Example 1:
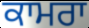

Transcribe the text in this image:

ਕਾਮਰਾ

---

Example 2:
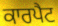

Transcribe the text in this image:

ਕਾਰਪੈਟ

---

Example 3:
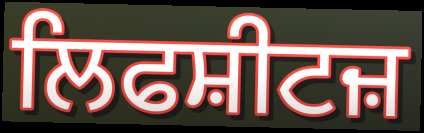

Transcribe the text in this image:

ਲਿਫਸ਼ੀਟਜ਼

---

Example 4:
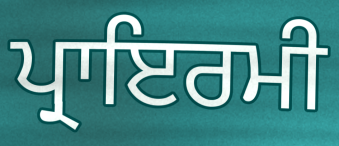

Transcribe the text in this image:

ਪ੍ਰਾਇਰਮੀ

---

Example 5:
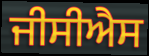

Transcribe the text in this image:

ਜੀਸੀਐਸ